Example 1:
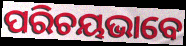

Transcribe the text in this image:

ପରିଚୟଭାବେ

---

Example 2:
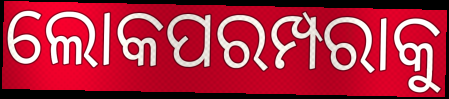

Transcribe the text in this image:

ଲୋକପରମ୍ପରାକୁ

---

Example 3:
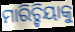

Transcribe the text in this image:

ମାରିଚ୍ଚିୟାକୁ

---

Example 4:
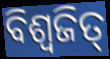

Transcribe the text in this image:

ବିଶ୍ୱଜିତ୍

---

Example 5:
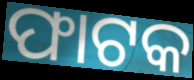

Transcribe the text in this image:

ଫାଟକ